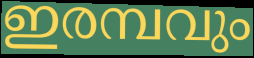
ഇരമ്പവും